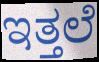
ಇತ್ತಲೆ